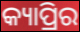
କ୍ୟାପ୍ରିର